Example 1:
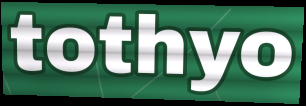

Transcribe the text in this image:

tothyo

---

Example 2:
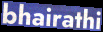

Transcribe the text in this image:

bhairathi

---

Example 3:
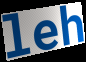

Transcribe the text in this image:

leh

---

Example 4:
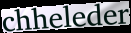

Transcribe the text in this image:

chheleder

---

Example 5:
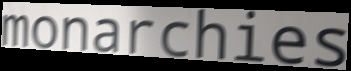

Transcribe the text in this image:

monarchies